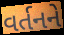
વર્તનને